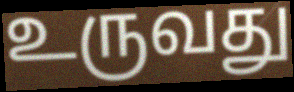
உருவது